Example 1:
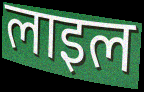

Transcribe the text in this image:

लाइल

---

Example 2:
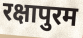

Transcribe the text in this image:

रक्षापुरम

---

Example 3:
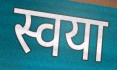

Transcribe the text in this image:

स्वया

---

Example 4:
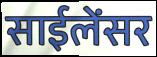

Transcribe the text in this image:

साईलेंसर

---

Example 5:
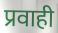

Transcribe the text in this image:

प्रवाही